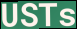
USTs